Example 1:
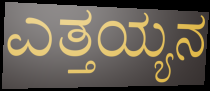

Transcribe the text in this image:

ಎತ್ತಯ್ಯನ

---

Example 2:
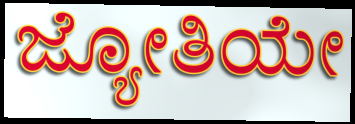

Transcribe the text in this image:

ಜ್ಯೋತಿಯೇ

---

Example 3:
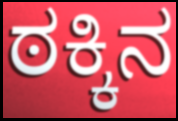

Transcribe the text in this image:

ಠಕ್ಕಿನ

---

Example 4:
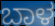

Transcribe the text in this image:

ಬಾಳ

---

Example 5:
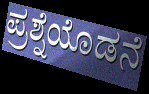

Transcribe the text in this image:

ಪ್ರಶ್ನೆಯೊಡನೆ